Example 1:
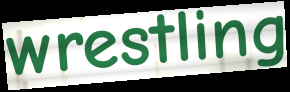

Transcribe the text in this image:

wrestling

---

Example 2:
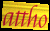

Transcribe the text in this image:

attho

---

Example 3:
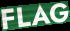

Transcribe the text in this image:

FLAG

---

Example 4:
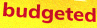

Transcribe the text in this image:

budgeted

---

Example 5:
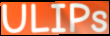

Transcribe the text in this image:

ULIPs